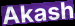
Akash